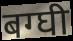
बग्घी